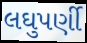
લઘુપર્ણી